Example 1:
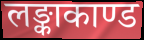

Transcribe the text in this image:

लङ्काकाण्ड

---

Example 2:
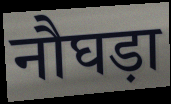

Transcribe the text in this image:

नौघड़ा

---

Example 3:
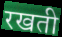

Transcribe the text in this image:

रखती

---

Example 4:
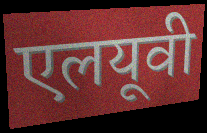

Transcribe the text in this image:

एलयूवी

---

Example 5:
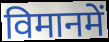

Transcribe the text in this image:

विमानमें